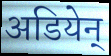
अडियेन्